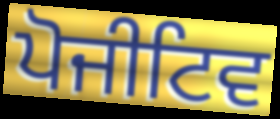
ਪੋਜੀਟਿਵ